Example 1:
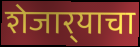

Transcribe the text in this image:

शेजार्‍याचा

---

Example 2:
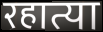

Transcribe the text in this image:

रहात्या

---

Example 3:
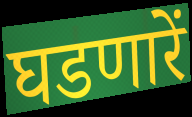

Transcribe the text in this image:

घडणारें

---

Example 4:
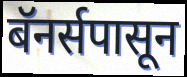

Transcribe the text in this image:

बॅनर्सपासून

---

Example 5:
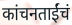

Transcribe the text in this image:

कांचनताईंचं